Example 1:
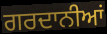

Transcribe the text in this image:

ਗਰਦਾਨੀਆਂ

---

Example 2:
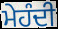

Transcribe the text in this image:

ਮੇਹੰਦੀ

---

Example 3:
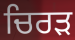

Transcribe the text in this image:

ਚਿਰੜ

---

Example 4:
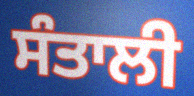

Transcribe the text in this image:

ਸੰਤਾਲੀ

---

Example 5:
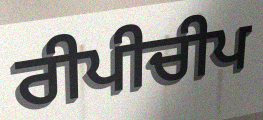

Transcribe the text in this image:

ਰੀਪੀਚੀਪ